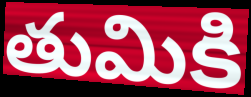
తుమికి